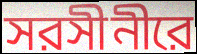
সরসীনীরে